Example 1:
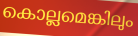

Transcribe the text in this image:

കൊല്ലമെങ്കിലും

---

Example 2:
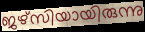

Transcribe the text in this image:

ജഴ്സിയായിരുന്നു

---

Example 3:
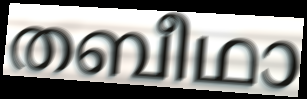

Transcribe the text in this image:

തബീഥാ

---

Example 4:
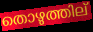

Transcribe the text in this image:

തൊഴുത്തില്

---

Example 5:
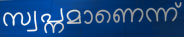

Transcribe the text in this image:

സ്വപ്നമാണെന്ന്